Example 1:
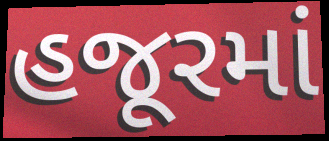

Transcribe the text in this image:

હજૂરમાં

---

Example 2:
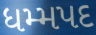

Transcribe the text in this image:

ધમ્મપદ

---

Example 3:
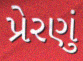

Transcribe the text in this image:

પ્રેરણું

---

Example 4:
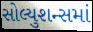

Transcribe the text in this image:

સોલ્યુશન્સમાં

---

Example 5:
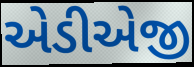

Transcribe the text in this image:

એડીએજી